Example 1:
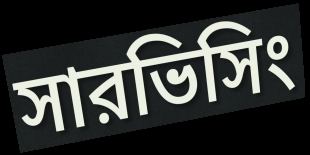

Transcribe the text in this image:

সারভিসিং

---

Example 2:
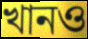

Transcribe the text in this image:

খানও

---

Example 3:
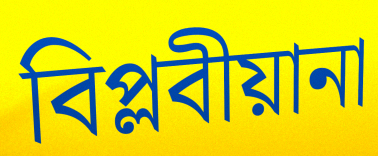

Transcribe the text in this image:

বিপ্লবীয়ানা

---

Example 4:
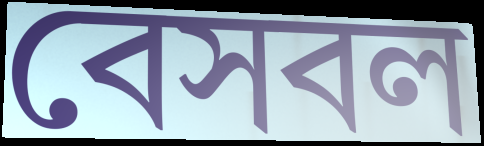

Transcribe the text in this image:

বেসবল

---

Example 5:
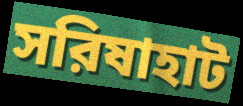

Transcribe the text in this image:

সরিষাহাট